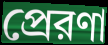
প্রেরণা